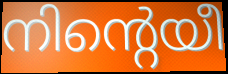
നിന്റെയീ